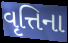
વૃત્તિના